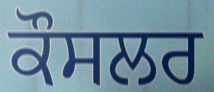
ਕੌਸਲਰ